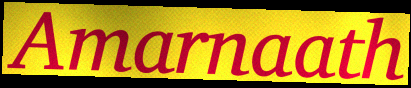
Amarnaath